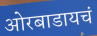
ओरबाडायचं